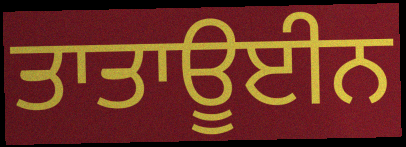
ਤਾਤਾਊਈਨ